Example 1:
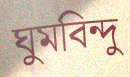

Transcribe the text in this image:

ঘুমবিন্দু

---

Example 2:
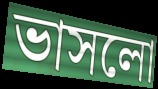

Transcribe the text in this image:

ভাসলো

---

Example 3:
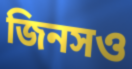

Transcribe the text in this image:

জিনসও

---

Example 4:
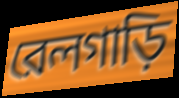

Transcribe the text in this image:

রেলগাড়ি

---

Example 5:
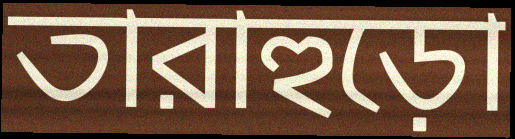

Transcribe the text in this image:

তারাহুড়ো